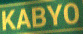
KABYO